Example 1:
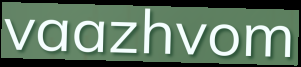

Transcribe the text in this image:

vaazhvom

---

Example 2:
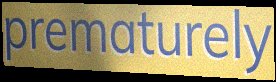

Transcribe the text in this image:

prematurely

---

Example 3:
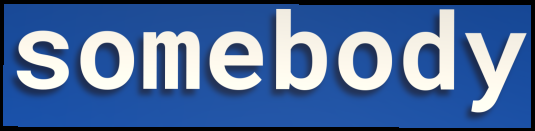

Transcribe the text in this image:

somebody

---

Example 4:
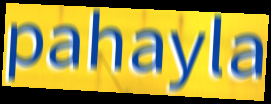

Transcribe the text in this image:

pahayla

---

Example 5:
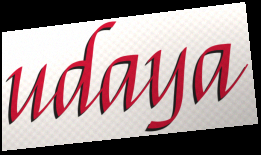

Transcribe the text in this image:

udaya